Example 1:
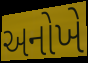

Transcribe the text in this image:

અનોખે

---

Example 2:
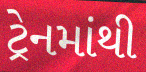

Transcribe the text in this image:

ટ્રેનમાંથી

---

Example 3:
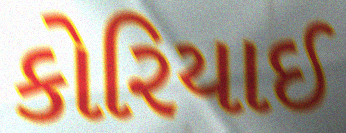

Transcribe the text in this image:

કોરિયાઈ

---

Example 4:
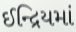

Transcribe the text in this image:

ઈન્દ્રિયમાં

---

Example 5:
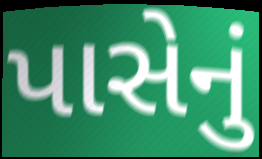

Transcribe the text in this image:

પાસેનું